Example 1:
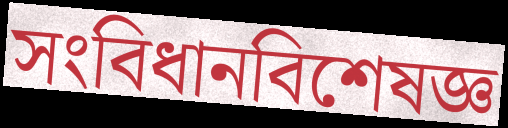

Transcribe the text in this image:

সংবিধানবিশেষজ্ঞ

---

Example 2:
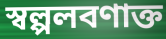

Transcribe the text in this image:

স্বল্পলবণাক্ত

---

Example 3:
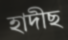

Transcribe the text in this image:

হাদীছ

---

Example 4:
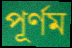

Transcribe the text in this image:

পূর্ণম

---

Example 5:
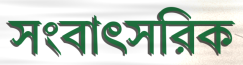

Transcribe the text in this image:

সংবাৎসরিক